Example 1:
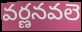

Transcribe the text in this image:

వర్ణనవలె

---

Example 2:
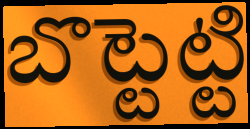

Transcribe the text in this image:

బొట్టెట్టి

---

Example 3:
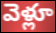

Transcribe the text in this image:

వెళ్లూ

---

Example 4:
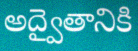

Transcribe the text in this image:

అద్వైతానికి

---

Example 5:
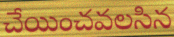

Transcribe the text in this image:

చేయించవలసిన